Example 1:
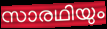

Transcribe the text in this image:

സാരഥിയും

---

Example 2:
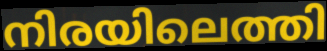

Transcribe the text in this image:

നിരയിലെത്തി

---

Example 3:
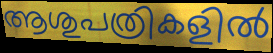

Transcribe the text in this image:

ആശുപത്രികളിൽ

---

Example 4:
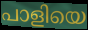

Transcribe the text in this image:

പാളിയെ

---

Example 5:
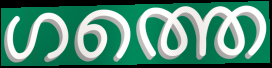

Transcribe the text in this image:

ഗത്തെ